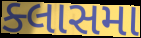
ક્લાસમા